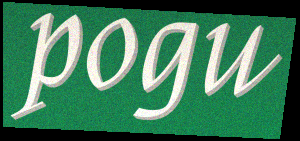
pogu